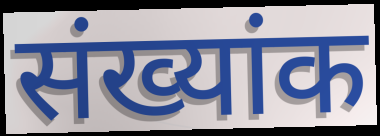
संख्यांक